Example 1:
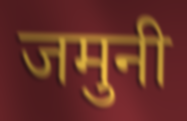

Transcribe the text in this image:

जमुनी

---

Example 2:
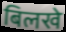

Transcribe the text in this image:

बिलखे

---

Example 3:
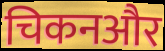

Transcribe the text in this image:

चिकनऔर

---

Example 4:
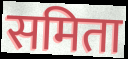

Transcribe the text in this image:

समिता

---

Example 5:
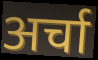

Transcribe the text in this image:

अर्चा